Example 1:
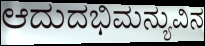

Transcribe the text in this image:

ಆದುದಭಿಮನ್ಯುವಿನ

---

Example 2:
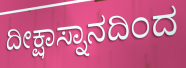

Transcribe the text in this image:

ದೀಕ್ಷಾಸ್ನಾನದಿಂದ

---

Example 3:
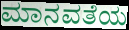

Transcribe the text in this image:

ಮಾನವತೆಯ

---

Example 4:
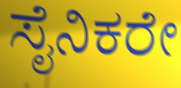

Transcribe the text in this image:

ಸೈನಿಕರೇ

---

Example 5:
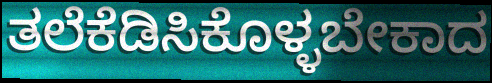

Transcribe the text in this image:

ತಲೆಕೆಡಿಸಿಕೊಳ್ಳಬೇಕಾದ